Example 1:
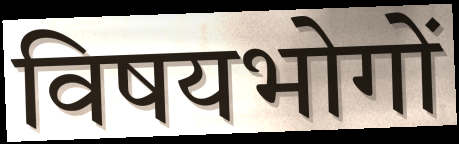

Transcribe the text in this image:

विषयभोगों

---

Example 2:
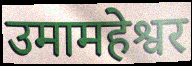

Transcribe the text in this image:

उमामहेश्वर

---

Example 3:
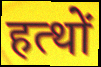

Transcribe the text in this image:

हत्थों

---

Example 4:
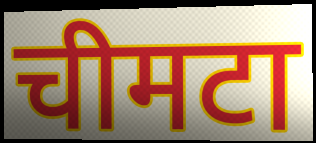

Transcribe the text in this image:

चीमटा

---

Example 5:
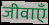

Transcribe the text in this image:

जीवाएँ